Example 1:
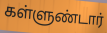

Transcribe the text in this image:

கள்ளுண்டார்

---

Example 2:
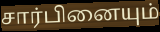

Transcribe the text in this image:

சார்பினையும்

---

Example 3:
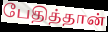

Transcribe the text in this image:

பேதித்தான்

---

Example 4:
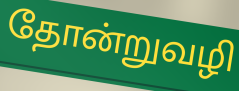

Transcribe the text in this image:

தோன்றுவழி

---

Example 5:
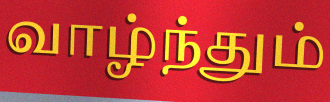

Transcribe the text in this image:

வாழ்ந்தும்